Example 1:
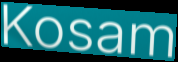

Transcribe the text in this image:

Kosam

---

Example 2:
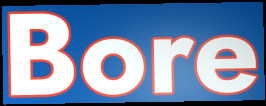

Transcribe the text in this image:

Bore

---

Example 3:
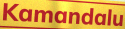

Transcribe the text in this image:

Kamandalu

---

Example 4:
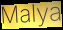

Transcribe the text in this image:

Malya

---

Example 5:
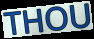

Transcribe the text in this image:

THOU